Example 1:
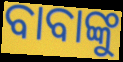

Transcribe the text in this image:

ବାବାଙ୍କୁ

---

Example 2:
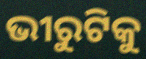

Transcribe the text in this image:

ଭୀରୁଟିକୁ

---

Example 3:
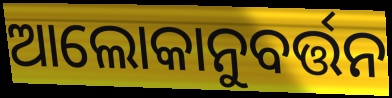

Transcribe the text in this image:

ଆଲୋକାନୁବର୍ତ୍ତନ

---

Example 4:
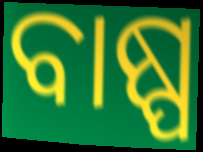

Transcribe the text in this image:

ବାଷ୍ପ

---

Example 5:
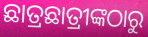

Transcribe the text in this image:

ଛାତ୍ରଛାତ୍ରୀଙ୍କଠାରୁ